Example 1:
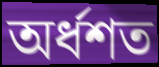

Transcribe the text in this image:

অর্ধশত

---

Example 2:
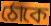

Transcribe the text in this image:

ঠোকে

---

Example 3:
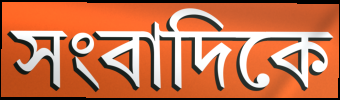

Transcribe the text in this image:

সংবাদিকে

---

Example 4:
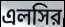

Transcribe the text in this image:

এলসির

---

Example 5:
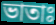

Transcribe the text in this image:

ভাতাঃ